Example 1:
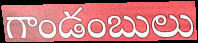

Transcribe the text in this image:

గాండంబులు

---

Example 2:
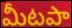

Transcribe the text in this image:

మీటపా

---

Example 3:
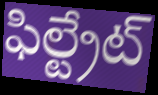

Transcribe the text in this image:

ఫిల్ట్రేట్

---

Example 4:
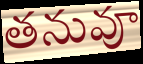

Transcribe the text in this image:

తనువూ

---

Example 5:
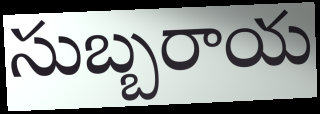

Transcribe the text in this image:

సుబ్బరాయ